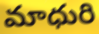
మాధురి